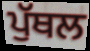
ਪੁੱਥਲ